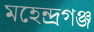
মহেন্দ্রগঞ্জ